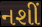
નશીં